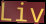
Liv